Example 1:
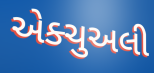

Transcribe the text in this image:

એક્ચુઅલી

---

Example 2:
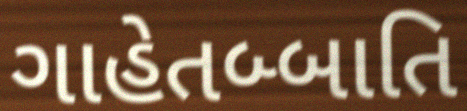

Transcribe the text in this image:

ગાહેતબ્બાતિ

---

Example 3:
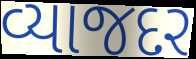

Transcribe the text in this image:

વ્યાજદર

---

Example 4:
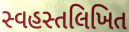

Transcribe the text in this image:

સ્વહસ્તલિખિત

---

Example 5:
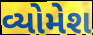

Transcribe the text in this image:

વ્યોમેશ